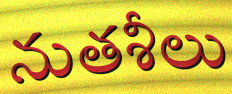
నుతశీలు